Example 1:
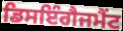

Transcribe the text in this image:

ਡਿਸਇੰਗੈਜਮੈਂਟ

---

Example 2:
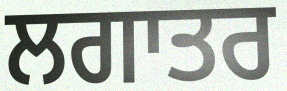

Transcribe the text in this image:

ਲਗਾਤਰ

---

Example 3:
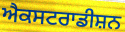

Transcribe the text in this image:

ਐਕਸਟਰਾਡੀਸ਼ਨ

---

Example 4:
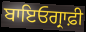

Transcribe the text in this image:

ਬਾਇਓਗ੍ਰਾਫ਼ੀ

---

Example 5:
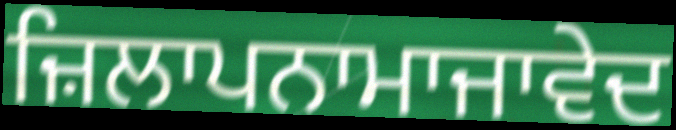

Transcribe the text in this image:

ਜ਼ਿਲਾਪਨਾਮਾਜਾਵੇਦ